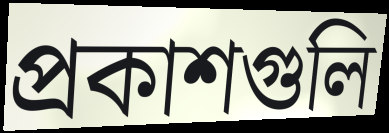
প্রকাশগুলি